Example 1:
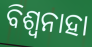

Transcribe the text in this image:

ବିଶ୍ଵନାହା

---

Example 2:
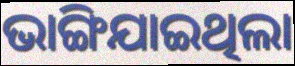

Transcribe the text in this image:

ଭାଙ୍ଗିଯାଇଥିଲା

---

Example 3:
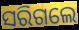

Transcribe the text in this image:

ସରିଗଲେ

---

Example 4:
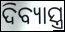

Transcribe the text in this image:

ଦିବ୍ୟାସ୍ତ୍ର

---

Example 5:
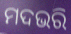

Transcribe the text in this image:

ମଦଭରି